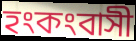
হংকংবাসী